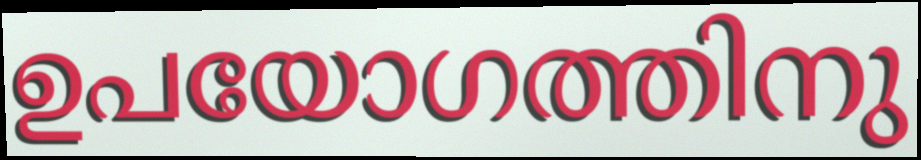
ഉപയോഗത്തിനു